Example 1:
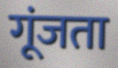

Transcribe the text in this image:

गूंजता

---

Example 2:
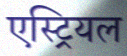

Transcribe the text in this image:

एस्ट्रियल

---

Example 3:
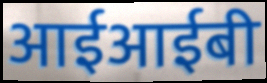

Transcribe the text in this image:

आईआईबी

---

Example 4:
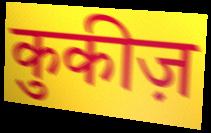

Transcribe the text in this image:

कुकीज़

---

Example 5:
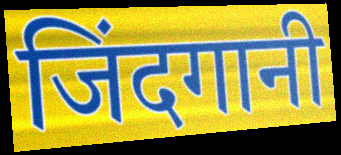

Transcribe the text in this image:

जिंदगानी